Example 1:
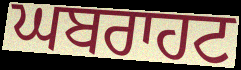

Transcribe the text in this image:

ਘਬਰਾਹਟ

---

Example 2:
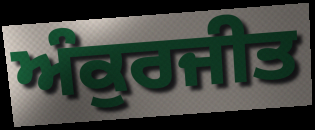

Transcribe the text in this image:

ਅੰਕੁਰਜੀਤ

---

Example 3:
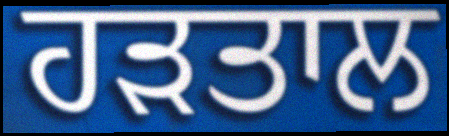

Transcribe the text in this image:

ਹੜਤਾਲ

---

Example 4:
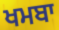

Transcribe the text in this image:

ਖਮਬਾ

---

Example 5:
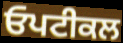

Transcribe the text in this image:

ਓਪਟੀਕਲ